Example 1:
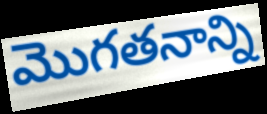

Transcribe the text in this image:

మొగతనాన్ని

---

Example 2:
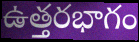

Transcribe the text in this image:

ఉత్తరభాగం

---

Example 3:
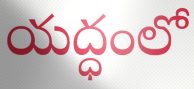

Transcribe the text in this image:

యద్ధంలో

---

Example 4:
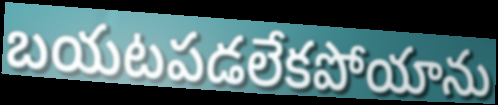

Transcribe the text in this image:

బయటపడలేకపోయాను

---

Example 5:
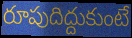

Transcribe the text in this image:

రూపుదిద్దుకుంటే